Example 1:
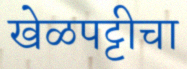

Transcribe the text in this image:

खेळपट्टीचा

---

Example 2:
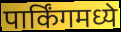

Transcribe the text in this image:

पार्किंगमध्ये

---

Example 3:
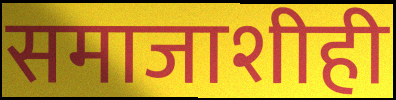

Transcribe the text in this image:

समाजाशीही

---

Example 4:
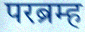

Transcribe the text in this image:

परब्रम्ह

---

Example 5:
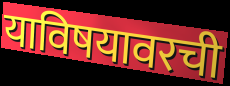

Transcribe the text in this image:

याविषयावरची